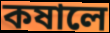
কষালে